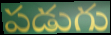
పడుగు